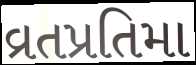
વ્રતપ્રતિમા